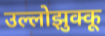
उल्लोझुक्कू